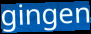
gingen